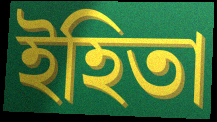
ইহিতা